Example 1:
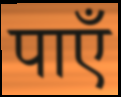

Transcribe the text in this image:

पाएँ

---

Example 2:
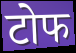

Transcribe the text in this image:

टोफ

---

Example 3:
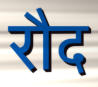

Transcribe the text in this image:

रौद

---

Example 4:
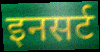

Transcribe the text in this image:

इनसर्ट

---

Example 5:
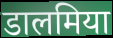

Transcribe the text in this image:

डालमिया